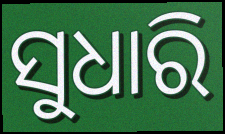
ସୁଧାରି